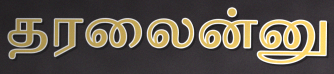
தரலைன்னு